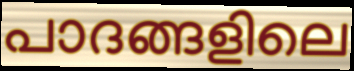
പാദങ്ങളിലെ